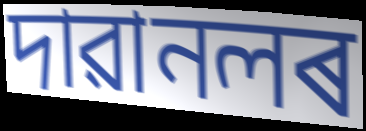
দাৱানলৰ